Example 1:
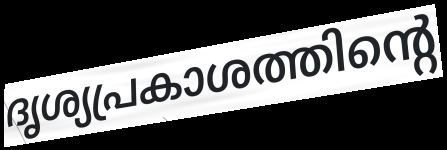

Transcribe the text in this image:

ദൃശ്യപ്രകാശത്തിന്റെ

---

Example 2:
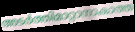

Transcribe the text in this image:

അടർത്തിമാറ്റാനാകാത്ത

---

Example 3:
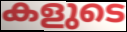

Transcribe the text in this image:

കളുടെ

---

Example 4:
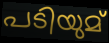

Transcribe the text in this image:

പടിയുമ്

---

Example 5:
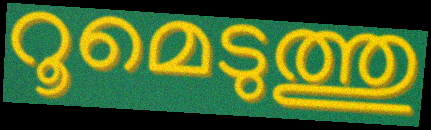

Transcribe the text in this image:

റൂമെടുത്തു